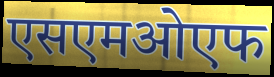
एसएमओएफ